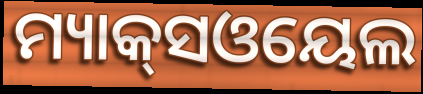
ମ୍ୟାକ୍‌ସଓୟେଲ